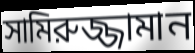
সামিরুজ্জামান